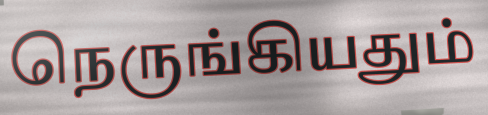
நெருங்கியதும்